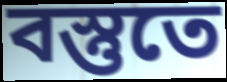
বস্তুতে